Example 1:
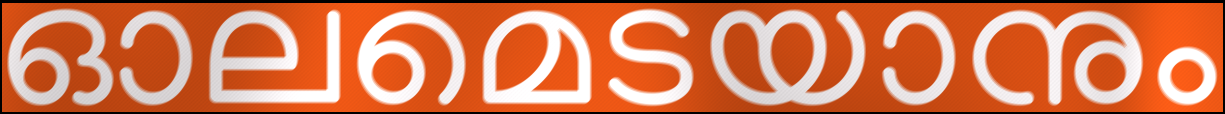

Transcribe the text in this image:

ഓലമെടയാനും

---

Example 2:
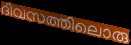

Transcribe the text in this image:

ദിവസത്തിലൊരു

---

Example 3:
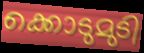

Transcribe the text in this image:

ക്കൊടുമുടി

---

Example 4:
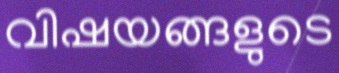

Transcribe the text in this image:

വിഷയങ്ങളുടെ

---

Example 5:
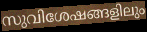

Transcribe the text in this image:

സുവിശേഷങ്ങളിലും